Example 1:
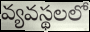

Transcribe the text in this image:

వ్యవస్థలలో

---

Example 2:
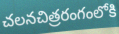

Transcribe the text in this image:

చలనచిత్రరంగంలోకి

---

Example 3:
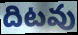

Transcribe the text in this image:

దిటవు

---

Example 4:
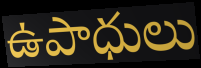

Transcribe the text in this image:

ఉపాధులు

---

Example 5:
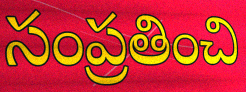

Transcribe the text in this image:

సంప్రతించి